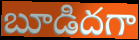
బూడిదగా